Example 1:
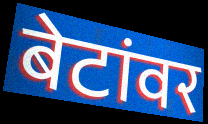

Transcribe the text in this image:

बेटांवर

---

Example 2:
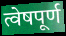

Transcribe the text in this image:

त्वेषपूर्ण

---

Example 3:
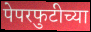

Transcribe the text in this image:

पेपरफुटीच्या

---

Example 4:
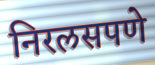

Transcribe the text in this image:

निरलसपणे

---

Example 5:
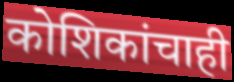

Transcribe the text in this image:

कोशिकांचाही